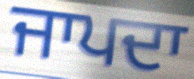
ਜਾਪਦਾ